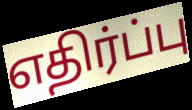
எதிர்ப்பு